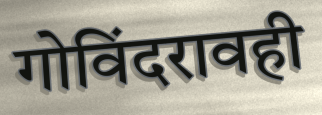
गोविंदरावही